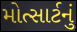
મોત્સાર્ટનું